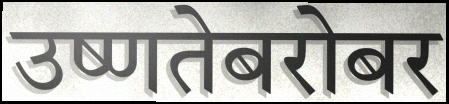
उष्णतेबरोबर